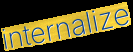
internalize